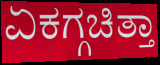
ಏಕಗ್ಗಚಿತ್ತಾ